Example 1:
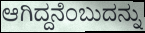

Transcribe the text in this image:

ಆಗಿದ್ದನೆಂಬುದನ್ನು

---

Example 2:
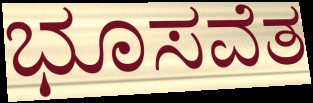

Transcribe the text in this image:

ಭೂಸವೆತ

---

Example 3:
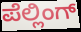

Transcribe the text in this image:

ಪೆಲ್ಲಿಂಗ್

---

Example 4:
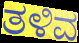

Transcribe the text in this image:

ತಳಿವ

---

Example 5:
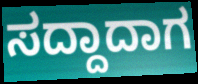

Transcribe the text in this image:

ಸದ್ದಾದಾಗ